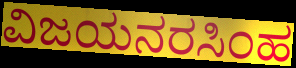
ವಿಜಯನರಸಿಂಹ